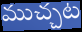
ముచ్చట